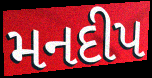
મનદીપ